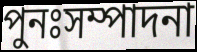
পুনঃসম্পাদনা